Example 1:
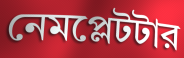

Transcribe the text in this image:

নেমপ্লেটটার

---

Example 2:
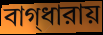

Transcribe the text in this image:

বাগ্‌ধারায়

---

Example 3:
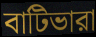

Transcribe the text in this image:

বাটিভারা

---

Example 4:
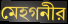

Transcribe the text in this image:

মেহগনীর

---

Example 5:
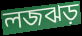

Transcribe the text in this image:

লজঝড়